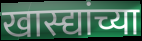
खास्द्यांच्या